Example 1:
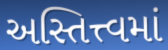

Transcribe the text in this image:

અસ્તિત્ત્વમાં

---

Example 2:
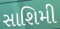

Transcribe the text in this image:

સાશિમી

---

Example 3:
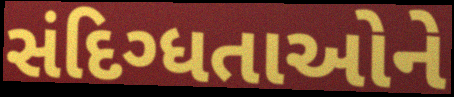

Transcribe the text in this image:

સંદિગ્ધતાઓને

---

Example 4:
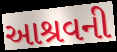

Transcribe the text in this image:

આશ્રવની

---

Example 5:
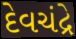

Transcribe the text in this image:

દેવચંદ્રે